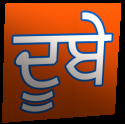
ਦੂਬੇ